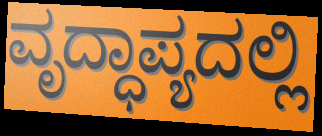
ವೃದ್ಧಾಪ್ಯದಲ್ಲಿ